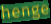
henge